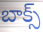
బాక్స్